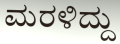
ಮರಳಿದ್ದು